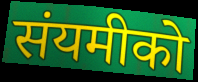
संयमीको